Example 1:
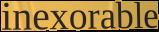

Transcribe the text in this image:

inexorable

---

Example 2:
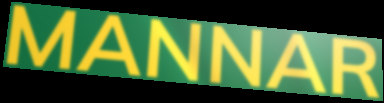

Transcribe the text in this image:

MANNAR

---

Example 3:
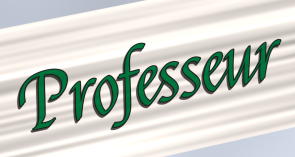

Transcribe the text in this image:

Professeur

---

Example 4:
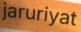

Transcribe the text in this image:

jaruriyat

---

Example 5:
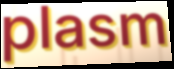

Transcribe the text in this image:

plasm